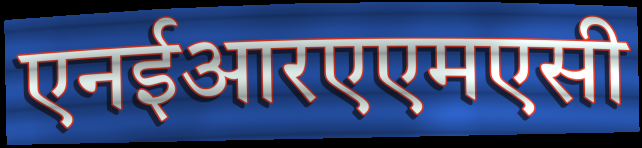
एनईआरएएमएसी